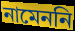
নামেননি